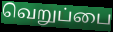
வெறுப்பை